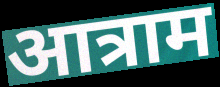
आत्राम